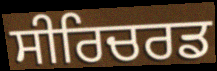
ਸੀਰਿਚਰਡ